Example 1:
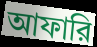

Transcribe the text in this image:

আফারি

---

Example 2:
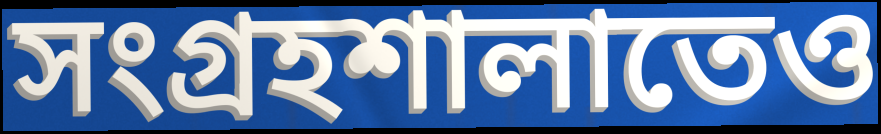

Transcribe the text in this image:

সংগ্রহশালাতেও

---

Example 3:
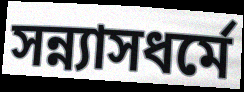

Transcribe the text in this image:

সন্ন্যাসধর্মে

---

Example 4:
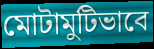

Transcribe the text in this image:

মোটামুটিভাবে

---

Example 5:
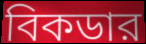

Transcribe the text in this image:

বিকডার